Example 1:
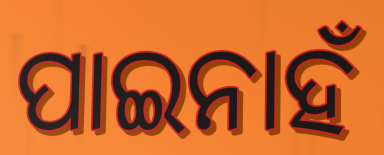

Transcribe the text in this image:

ପାଇନାହଁ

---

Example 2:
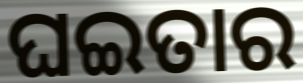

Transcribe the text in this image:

ଘଇତାର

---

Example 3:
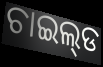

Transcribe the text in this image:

ଚାଇଲ୍‌ଡ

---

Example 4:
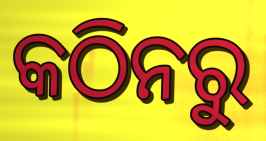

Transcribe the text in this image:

କଠିନରୁ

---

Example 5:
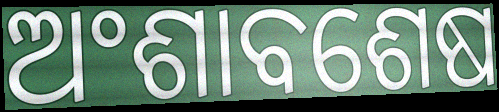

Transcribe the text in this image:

ଅଂଶାବଶେଷ